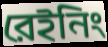
রেইনিং